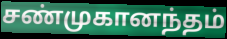
சண்முகானந்தம்